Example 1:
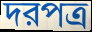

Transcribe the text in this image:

দরপত্র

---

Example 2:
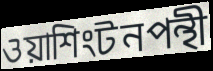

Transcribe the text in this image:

ওয়াশিংটনপন্থী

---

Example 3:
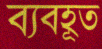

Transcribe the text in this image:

ব্যবহূত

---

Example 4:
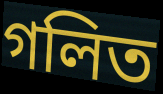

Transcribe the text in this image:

গলিত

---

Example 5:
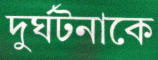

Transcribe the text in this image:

দুর্ঘটনাকে